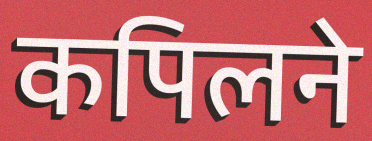
कपिलने